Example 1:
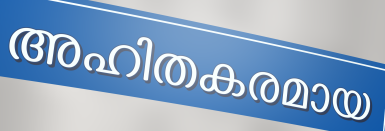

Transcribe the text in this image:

അഹിതകരമായ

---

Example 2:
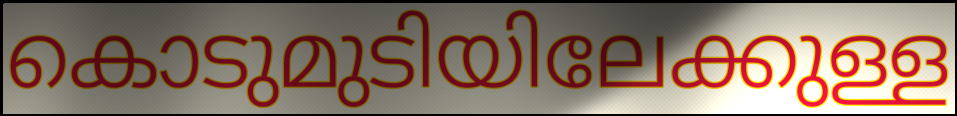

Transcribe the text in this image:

കൊടുമുടിയിലേക്കുള്ള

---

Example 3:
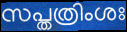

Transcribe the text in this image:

സപ്തത്രിംശഃ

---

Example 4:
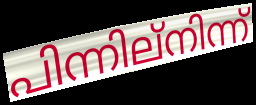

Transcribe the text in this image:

പിന്നില്നിന്ന്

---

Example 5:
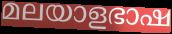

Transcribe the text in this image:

മലയാളഭാഷ